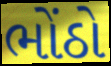
ભોંઠો